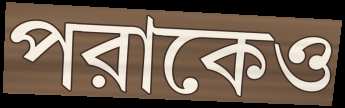
পরাকেও